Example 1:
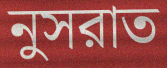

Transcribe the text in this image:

নুসরাত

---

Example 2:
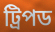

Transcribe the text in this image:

ট্রিপড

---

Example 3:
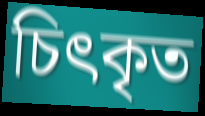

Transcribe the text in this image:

চিৎকৃত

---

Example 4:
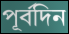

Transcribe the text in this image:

পূর্বদিন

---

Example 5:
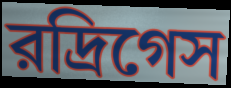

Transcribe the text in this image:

রদ্রিগেস